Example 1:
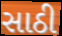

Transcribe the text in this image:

સાઠી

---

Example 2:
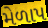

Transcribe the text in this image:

મેળાપ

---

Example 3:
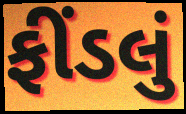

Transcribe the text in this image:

ફીંડલું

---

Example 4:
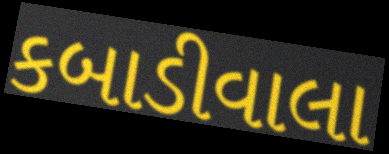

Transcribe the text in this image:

કબાડીવાલા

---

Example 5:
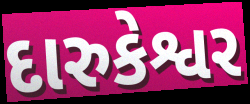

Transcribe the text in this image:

દારુકેશ્વર